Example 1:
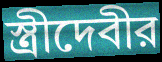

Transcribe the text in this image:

স্ত্রীদেবীর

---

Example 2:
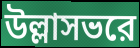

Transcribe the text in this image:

উল্লাসভরে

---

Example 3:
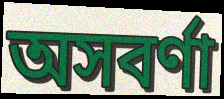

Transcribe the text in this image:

অসবর্ণা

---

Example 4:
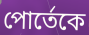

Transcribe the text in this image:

পোর্তেকে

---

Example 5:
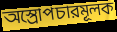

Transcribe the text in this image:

অস্ত্রোপচারমূলক